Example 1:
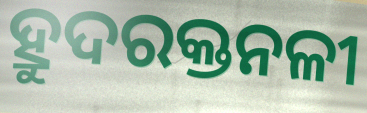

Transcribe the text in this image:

ହ୍ରୁଦରକ୍ତନଳୀ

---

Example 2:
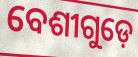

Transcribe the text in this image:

ବେଶୀଗୁଡ଼େ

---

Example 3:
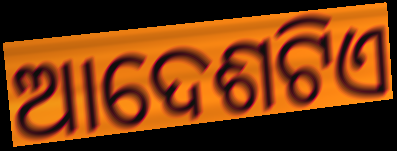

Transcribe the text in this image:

ଆଦେଶଟିଏ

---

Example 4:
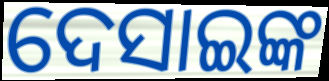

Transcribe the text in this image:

ଦେସାଇଙ୍କ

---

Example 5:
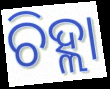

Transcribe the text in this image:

ଚିହ୍ଲା